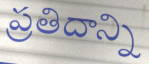
ప్రతిదాన్ని